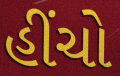
હીંચો